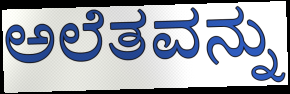
ಅಲೆತವನ್ನು